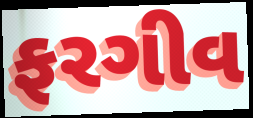
ફરગીવ